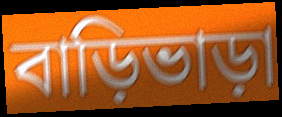
বাড়িভাড়া